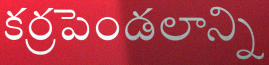
కర్రపెండలాన్ని